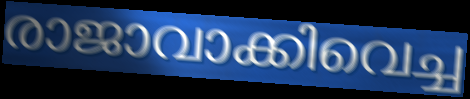
രാജാവാക്കിവെച്ച